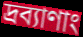
দ্রব্যাণাং